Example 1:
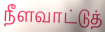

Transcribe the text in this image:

நீளவாட்டுத்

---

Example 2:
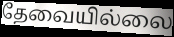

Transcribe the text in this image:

தேவையில்லை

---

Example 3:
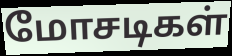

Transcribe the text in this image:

மோசடிகள்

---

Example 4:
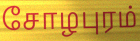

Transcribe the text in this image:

சோழபுரம்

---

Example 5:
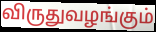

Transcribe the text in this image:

விருதுவழங்கும்